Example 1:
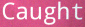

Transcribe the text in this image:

Caught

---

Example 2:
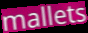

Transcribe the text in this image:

mallets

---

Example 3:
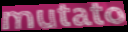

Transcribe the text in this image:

mutato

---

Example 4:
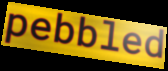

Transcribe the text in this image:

pebbled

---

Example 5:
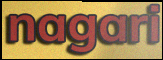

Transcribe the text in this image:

nagari